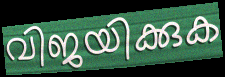
വിജയിക്കുക